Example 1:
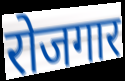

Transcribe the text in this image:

रोजगार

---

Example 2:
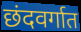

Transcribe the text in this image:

छंदवर्गात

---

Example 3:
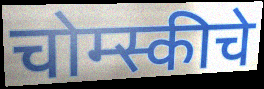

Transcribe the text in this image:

चोम्स्कीचे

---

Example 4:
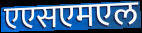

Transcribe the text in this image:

एएसएमएल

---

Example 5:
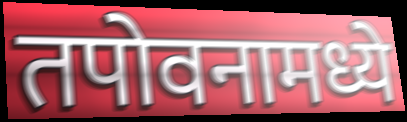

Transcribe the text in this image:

तपोवनामध्ये